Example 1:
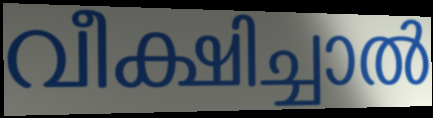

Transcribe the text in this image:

വീക്ഷിച്ചാൽ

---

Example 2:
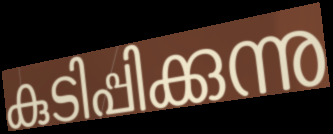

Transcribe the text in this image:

കുടിപ്പിക്കുന്നു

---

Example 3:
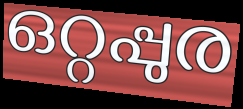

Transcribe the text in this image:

ഒറ്റപ്പുര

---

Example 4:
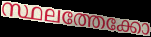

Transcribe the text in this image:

സ്ഥലത്തേക്കോ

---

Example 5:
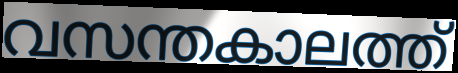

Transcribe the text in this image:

വസന്തകാലത്ത്